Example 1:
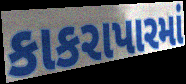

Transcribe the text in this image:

કાકરાપારમાં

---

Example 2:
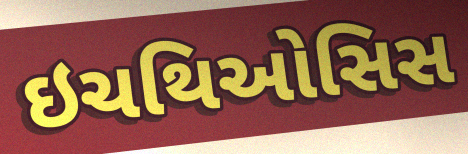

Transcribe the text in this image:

ઇચથિઓસિસ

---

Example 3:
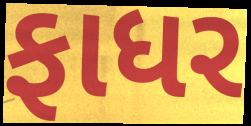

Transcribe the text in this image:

ફાધર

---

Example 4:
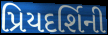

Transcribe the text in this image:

પ્રિયદર્શિની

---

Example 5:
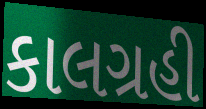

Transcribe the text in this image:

કાલગ્રહી